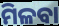
ମିଳବା